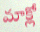
మాక్లో